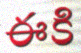
ఈకి